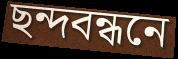
ছন্দবন্ধনে